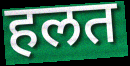
हलत